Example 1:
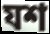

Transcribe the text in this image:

যশ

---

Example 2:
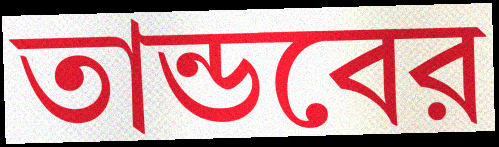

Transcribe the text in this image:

তান্ডবের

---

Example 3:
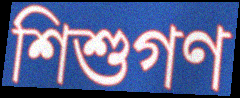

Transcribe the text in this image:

শিশুগণ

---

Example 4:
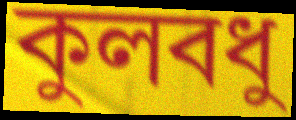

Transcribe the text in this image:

কুলবধু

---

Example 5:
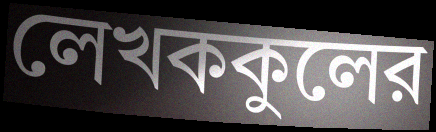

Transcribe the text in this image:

লেখককুলের